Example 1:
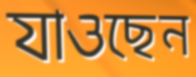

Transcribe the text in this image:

যাওছেন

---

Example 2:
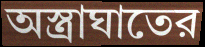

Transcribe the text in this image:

অস্ত্রাঘাতের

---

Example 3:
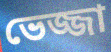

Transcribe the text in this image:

ভেজ্জা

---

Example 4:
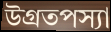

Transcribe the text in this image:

উগ্রতপস্যা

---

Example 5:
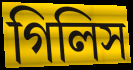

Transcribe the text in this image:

গিলিস